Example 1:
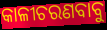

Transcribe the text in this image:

କାଳୀଚରଣବାବୁ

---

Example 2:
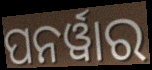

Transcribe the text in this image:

ପନର୍ୱାର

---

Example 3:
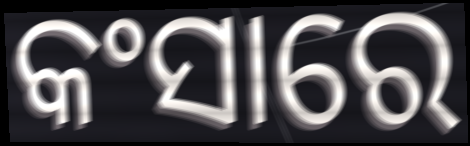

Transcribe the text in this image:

କଂସାରେ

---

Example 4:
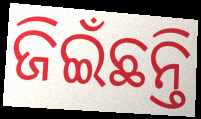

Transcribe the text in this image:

ଜିଇଁଛନ୍ତି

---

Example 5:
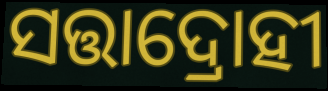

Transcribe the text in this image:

ସତ୍ତାଦ୍ରୋହୀ